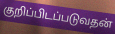
குறிப்பிடப்படுவதன்